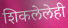
शिकलेलेही